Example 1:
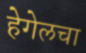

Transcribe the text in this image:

हेगेलचा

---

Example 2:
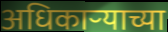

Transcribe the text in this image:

अधिकाऱ्याच्या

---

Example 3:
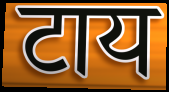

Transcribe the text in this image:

टाय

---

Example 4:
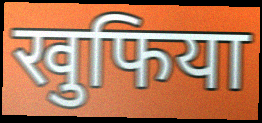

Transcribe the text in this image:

खुफिया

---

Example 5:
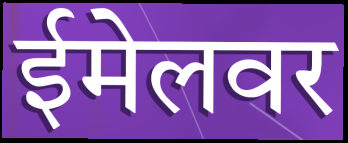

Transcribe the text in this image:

ईमेलवर